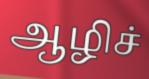
ஆழிச்